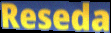
Reseda